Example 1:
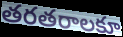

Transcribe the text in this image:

తరతరాలకూ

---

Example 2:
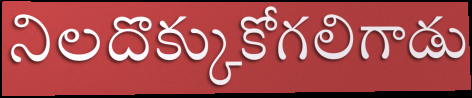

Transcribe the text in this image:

నిలదొక్కుకోగలిగాడు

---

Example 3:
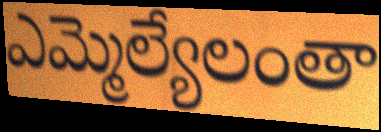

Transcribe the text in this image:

ఎమ్మెల్యేలంతా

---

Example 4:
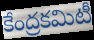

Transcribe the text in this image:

కేంద్రకమిటీ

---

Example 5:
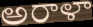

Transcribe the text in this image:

అరాళా